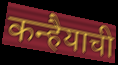
कन्हैयाची